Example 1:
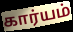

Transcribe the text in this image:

கார்யம்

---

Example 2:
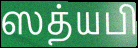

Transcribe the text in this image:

ஸத்யபி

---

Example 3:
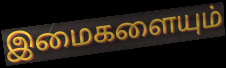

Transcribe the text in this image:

இமைகளையும்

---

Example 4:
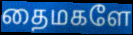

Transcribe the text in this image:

தைமகளே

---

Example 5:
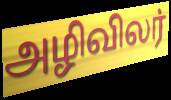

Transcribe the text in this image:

அழிவிலர்